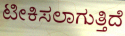
ಟೀಕಿಸಲಾಗುತ್ತಿದೆ